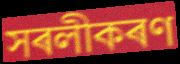
সৰলীকৰণ